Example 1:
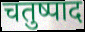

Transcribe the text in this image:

चतुष्पाद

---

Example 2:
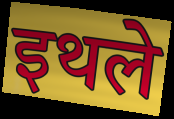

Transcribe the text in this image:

इथले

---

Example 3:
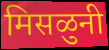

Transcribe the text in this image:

मिसळुनी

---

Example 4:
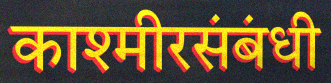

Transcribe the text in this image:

काश्मीरसंबंधी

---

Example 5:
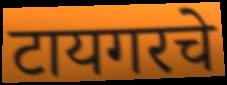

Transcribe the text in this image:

टायगरचे